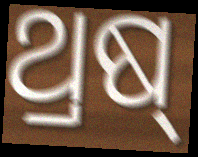
ଥ୍ରଷ୍